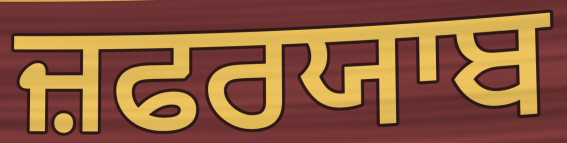
ਜ਼ਫਰਯਾਬ